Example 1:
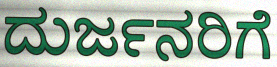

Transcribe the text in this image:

ದುರ್ಜನರಿಗೆ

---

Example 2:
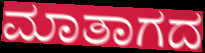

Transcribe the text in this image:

ಮಾತಾಗದ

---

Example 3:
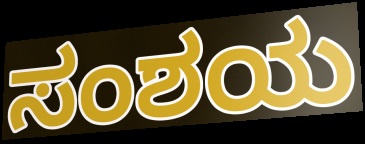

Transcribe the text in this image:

ಸಂಶಯ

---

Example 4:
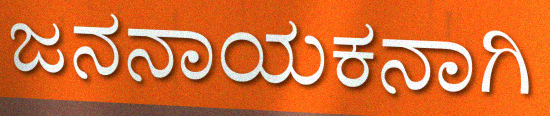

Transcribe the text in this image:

ಜನನಾಯಕನಾಗಿ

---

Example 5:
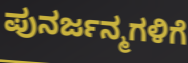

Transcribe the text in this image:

ಪುನರ್ಜನ್ಮಗಳಿಗೆ